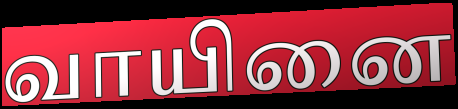
வாயினை